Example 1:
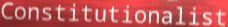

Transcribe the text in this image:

Constitutionalist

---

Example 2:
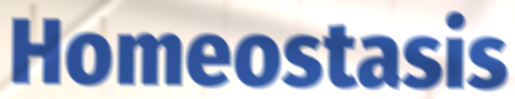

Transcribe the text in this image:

Homeostasis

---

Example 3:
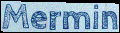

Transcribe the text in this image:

Mermin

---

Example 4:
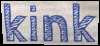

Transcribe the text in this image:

kink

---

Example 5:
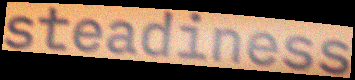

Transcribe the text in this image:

steadiness